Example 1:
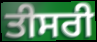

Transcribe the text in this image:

ਤੀਸਰੀ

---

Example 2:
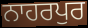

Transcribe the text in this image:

ਨਾਹਰਪੁਰ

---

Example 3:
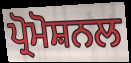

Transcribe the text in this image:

ਪ੍ਰੋਮੋਸ਼ਨਲ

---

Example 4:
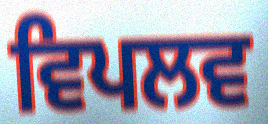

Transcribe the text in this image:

ਵਿਪਲਵ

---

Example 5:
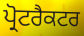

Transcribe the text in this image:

ਪ੍ਰੋਟਰੈਕਟਰ